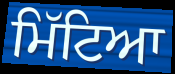
ਮਿੱਟਿਆ